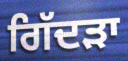
ਗਿੱਦੜਾ